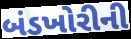
બંડખોરીની